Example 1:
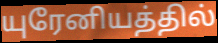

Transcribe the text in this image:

யுரேனியத்தில்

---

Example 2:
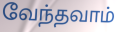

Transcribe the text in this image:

வேந்தவாம்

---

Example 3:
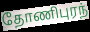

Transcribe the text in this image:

தோணிபுரந்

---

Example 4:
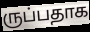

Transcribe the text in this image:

ருப்பதாக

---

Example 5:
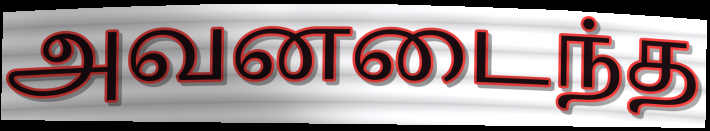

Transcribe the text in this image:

அவனடைந்த